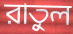
রাতুল